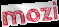
mozi